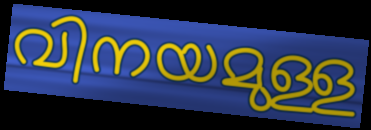
വിനയമുള്ള